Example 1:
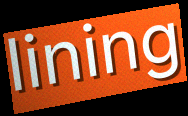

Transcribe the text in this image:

lining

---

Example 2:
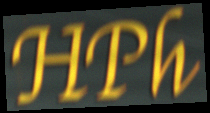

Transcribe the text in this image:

HPh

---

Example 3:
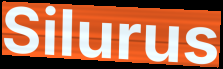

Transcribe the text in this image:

Silurus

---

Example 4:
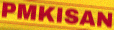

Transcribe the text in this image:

PMKISAN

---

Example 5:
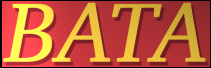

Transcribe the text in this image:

BATA